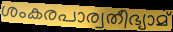
ശംകരപാര്വതീഭ്യാമ്